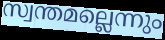
സ്വന്തമല്ലെന്നും